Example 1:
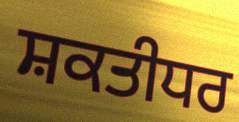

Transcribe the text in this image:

ਸ਼ਕਤੀਧਰ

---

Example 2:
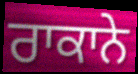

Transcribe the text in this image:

ਰਾਕਾਨੇ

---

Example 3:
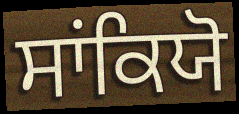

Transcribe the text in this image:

ਸਾਂਕਿਯੋ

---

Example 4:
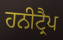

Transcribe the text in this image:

ਹਨੀਟ੍ਰੈਪ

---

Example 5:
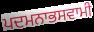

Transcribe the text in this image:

ਪਦਮਨਾਭਸਵਾਮੀ